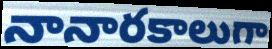
నానారకాలుగా